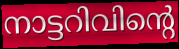
നാട്ടറിവിന്റെ